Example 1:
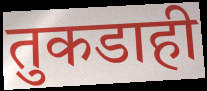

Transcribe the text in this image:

तुकडाही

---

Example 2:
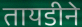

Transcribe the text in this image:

तायडीने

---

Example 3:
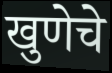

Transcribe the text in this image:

खुणेचे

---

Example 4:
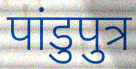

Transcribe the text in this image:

पांडुपुत्र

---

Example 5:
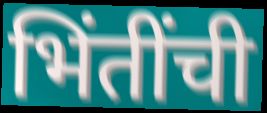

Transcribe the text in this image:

भिंतींची